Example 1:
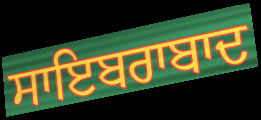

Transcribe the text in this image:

ਸਾਇਬਰਾਬਾਦ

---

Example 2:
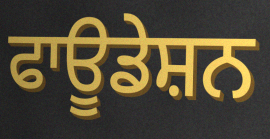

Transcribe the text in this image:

ਫਾਊਡੇਸ਼ਨ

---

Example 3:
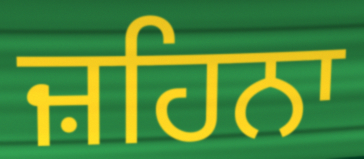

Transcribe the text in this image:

ਜ਼ਹਿਨਾ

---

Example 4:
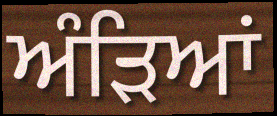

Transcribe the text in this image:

ਅੰੜਿਆਂ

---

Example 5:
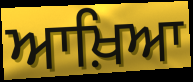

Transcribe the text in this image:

ਆਖ਼ਿਆ